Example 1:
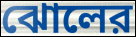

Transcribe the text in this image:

ঝোলের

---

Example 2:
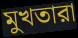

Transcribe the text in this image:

মুখতারা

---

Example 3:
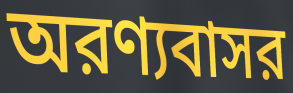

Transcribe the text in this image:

অরণ্যবাসর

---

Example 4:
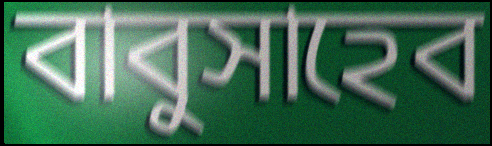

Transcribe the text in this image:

বাবুসাহেব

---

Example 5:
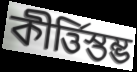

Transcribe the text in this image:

কীর্ত্তিস্তম্ভ